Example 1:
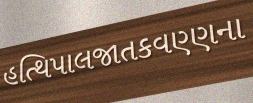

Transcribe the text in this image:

હત્થિપાલજાતકવણ્ણના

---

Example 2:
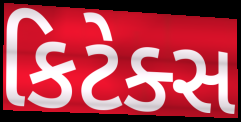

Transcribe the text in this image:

કિટેક્સ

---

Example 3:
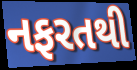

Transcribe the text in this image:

નફરતથી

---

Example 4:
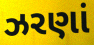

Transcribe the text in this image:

ઝરણાં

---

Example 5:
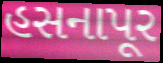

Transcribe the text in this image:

હસનાપૂર